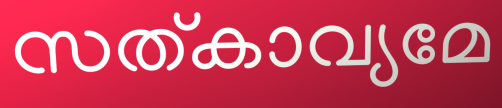
സത്കാവ്യമേ